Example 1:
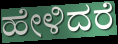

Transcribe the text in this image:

ಹೇಳಿದರೆ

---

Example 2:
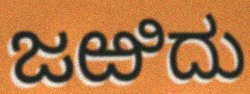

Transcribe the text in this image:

ಜಱಿದು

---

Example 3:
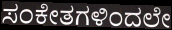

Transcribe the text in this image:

ಸಂಕೇತಗಳಿಂದಲೇ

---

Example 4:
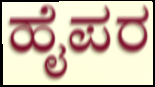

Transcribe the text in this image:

ಹೈಪರ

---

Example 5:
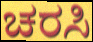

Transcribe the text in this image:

ಚರಸಿ